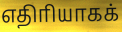
எதிரியாகக்